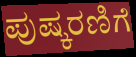
ಪುಷ್ಕರಣಿಗೆ